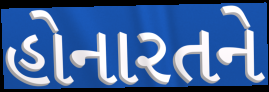
હોનારતને